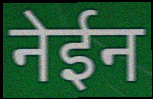
नेईन